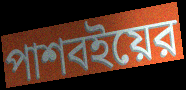
পাশবইয়ের